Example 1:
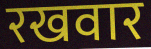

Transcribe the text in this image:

रखवार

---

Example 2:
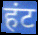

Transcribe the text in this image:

हंट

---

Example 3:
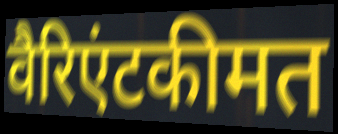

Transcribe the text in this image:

वैरिएंटकीमत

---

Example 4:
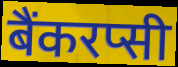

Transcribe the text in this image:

बैंकरप्सी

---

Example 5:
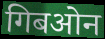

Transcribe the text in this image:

गिबओन